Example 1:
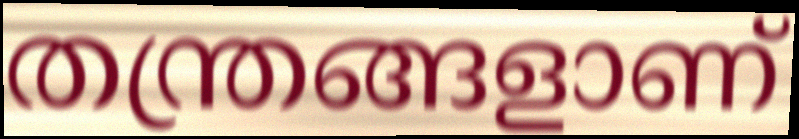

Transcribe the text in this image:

തന്ത്രങ്ങളാണ്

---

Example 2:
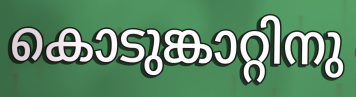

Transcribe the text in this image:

കൊടുങ്കാറ്റിനു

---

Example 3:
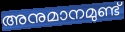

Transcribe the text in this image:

അനുമാനമുണ്ട്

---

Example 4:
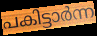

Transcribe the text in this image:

പകിട്ടാർന്ന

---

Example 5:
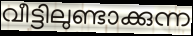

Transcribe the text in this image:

വീട്ടിലുണ്ടാക്കുന്ന